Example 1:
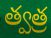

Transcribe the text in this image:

త్వత్ర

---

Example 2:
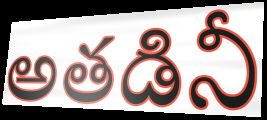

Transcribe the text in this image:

అతడినీ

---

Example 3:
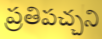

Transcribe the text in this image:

ప్రతిపచ్చని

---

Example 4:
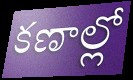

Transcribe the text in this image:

కణాల్లో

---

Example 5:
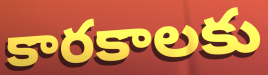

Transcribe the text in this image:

కారకాలకు